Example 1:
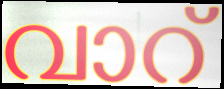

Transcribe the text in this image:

വാറ്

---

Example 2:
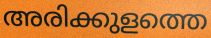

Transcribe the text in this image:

അരിക്കുളത്തെ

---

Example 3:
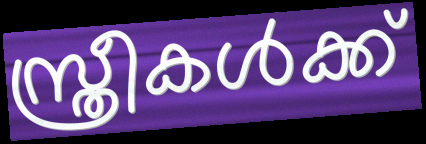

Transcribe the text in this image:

സ്ത്രീകൾക്ക്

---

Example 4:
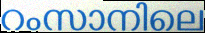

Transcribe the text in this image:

റംസാനിലെ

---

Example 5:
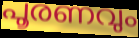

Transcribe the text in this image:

പൂരണവും